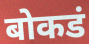
बोकडं